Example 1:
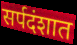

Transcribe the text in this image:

सर्पदंशात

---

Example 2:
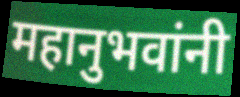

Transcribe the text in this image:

महानुभवांनी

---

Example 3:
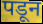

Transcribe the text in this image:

पडून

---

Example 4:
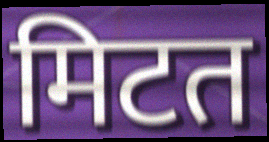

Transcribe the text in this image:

मिटत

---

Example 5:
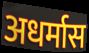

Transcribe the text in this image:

अधर्मास